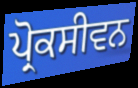
ਪ੍ਰੋਕਸੀਵਨ